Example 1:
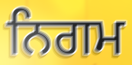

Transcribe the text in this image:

ਨਿਗਮ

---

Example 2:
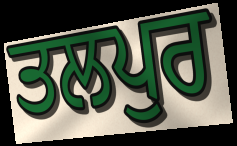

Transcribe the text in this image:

ਤਲਪੁਰ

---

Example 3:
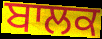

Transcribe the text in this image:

ਬਾਲਕ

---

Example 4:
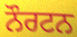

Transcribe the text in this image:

ਨੌਰਟਨ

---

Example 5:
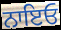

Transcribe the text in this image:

ਨਾਇਓ